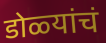
डोळ्यांचं